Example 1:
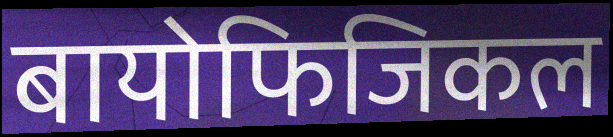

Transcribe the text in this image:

बायोफिजिकल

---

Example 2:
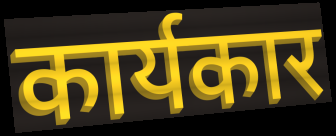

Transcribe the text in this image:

कार्यकार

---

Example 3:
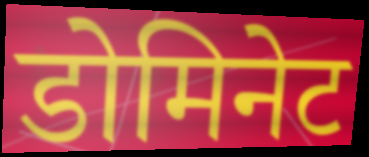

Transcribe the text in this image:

डोमिनेट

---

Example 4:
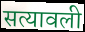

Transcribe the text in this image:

सत्यावली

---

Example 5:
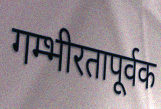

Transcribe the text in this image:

गम्भीरतापूर्वक